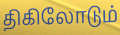
திகிலோடும்